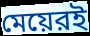
মেয়েরই